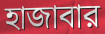
হাজাবার